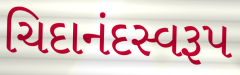
ચિદાનંદસ્વરૂપ